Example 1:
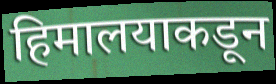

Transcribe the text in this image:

हिमालयाकडून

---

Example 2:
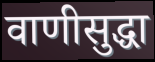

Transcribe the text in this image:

वाणीसुद्धा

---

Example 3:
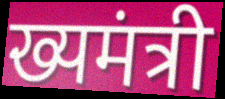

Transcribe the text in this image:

ख्यमंत्री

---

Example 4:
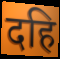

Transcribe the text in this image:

दहि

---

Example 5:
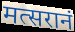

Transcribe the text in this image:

मत्सरानं